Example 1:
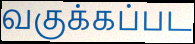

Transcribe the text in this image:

வகுக்கப்பட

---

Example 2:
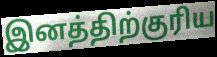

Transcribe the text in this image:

இனத்திற்குரிய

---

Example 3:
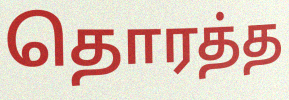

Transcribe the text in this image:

தொரத்த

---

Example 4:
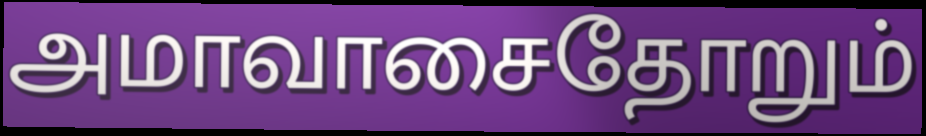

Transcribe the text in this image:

அமாவாசைதோறும்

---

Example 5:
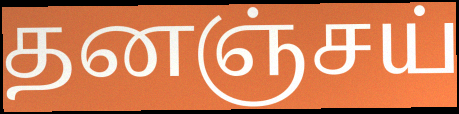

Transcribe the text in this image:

தனஞ்சய்